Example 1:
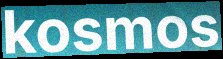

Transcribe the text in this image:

kosmos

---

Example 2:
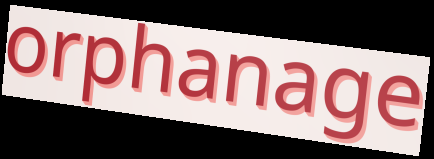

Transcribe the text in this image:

orphanage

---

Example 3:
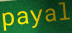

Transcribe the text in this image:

payal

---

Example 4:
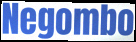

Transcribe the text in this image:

Negombo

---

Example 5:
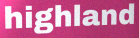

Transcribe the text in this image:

highland